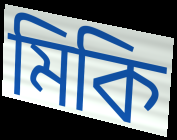
মিকি